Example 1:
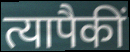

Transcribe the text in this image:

त्यापैकीं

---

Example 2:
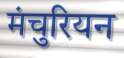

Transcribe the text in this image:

मंचुरियन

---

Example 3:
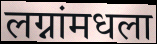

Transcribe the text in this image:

लग्नांमधला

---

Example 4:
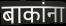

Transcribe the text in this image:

बाकांना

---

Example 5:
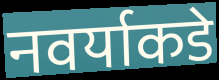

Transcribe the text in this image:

नवर्याकडे